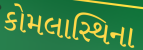
કોમલાસ્થિના